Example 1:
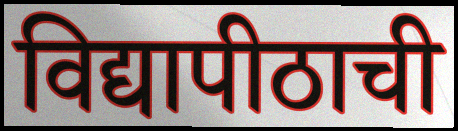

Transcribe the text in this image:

विद्यापीठाची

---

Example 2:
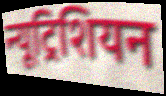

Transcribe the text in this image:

न्यूट्रिशियन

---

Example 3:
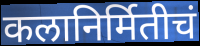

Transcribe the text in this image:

कलानिर्मितीचं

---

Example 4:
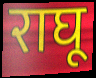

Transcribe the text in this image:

राघू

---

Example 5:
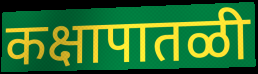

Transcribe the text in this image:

कक्षापातळी